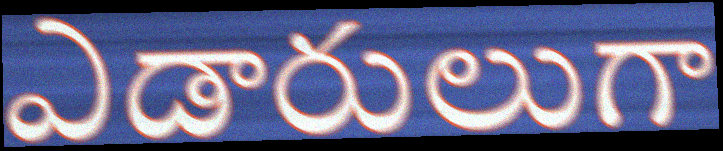
ఎడారులుగా